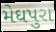
મેઘપુરા